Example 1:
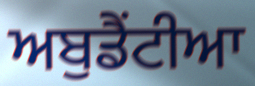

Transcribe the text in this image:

ਅਬੁਡੈਂਟੀਆ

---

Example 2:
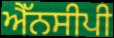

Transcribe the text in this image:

ਐੱਨਸੀਪੀ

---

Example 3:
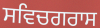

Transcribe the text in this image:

ਸਵਿਚਗਰਾਸ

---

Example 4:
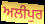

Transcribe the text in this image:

ਅਲੀਪੁਰ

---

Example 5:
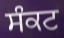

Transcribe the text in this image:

ਸੰਕਟ